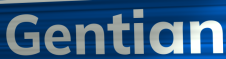
Gentian